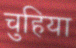
चुहिया